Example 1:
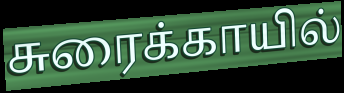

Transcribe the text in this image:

சுரைக்காயில்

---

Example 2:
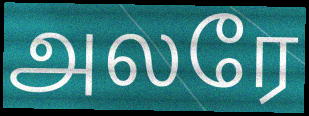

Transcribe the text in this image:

அலரே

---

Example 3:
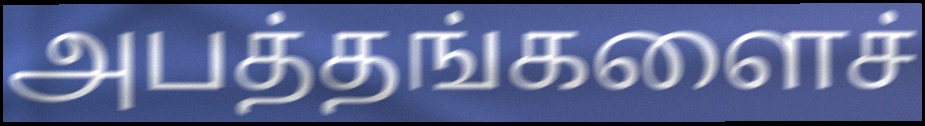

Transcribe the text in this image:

அபத்தங்களைச்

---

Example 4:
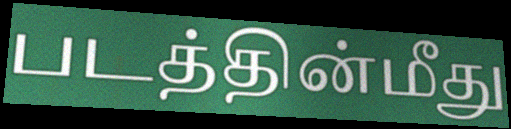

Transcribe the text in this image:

படத்தின்மீது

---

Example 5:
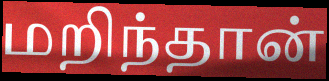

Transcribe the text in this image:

மறிந்தான்